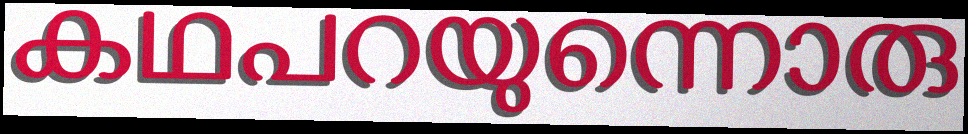
കഥപറയുന്നൊരു